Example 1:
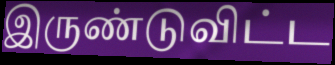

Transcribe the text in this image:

இருண்டுவிட்ட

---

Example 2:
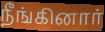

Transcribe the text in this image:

நீங்கினார்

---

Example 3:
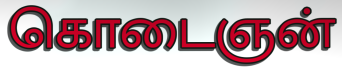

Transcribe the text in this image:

கொடைஞன்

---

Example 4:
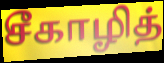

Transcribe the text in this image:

சீகாழித்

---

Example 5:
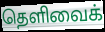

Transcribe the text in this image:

தெளிவைக்